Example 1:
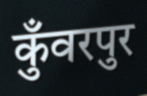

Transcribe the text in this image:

कुँवरपुर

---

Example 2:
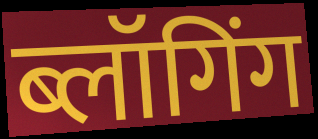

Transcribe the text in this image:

ब्‍लॉगिंग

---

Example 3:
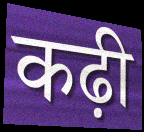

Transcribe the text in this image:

कढ़ी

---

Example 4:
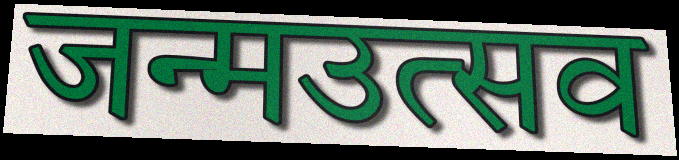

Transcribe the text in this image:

जन्मउत्सव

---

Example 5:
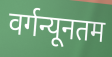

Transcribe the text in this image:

वर्गन्यूनतम